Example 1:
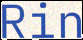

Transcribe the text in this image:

Rin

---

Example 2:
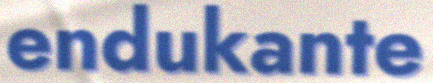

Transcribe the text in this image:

endukante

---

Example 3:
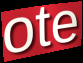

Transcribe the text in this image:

ote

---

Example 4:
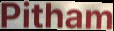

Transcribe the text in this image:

Pitham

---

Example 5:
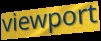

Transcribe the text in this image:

viewport